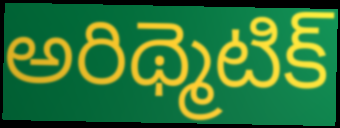
అరిథ్మెటిక్